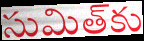
సుమిత్‌కు